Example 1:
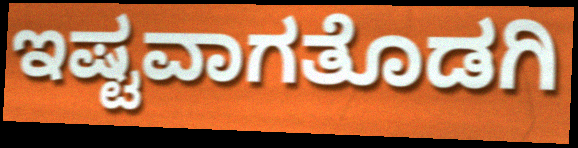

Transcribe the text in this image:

ಇಷ್ಟವಾಗತೊಡಗಿ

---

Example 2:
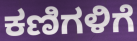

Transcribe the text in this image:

ಕಣಿಗಳಿಗೆ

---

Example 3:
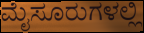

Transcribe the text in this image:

ಮೈಸೂರುಗಳಲ್ಲಿ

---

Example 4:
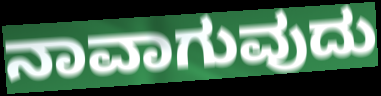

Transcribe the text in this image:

ನಾವಾಗುವುದು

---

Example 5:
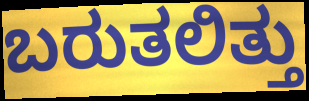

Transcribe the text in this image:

ಬರುತಲಿತ್ತು